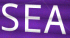
SEA